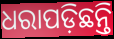
ଧରାପଡ଼ିଛନ୍ତି